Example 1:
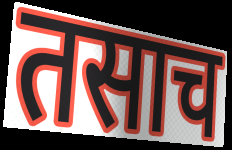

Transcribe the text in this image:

तसाच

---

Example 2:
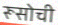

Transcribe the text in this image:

रूसोची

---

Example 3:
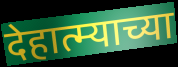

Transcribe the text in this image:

देहात्म्याच्या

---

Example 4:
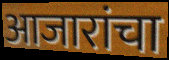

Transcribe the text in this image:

आजारांचा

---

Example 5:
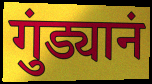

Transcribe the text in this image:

गुंड्यानं